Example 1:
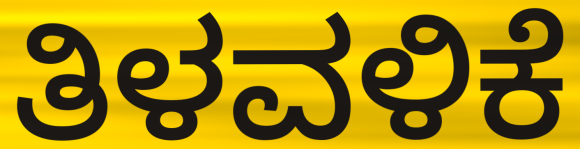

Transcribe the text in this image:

ತಿಳವಳಿಕೆ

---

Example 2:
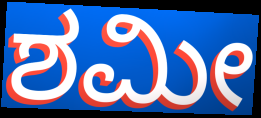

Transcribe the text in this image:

ಶಮೀ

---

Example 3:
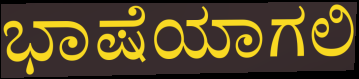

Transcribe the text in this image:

ಭಾಷೆಯಾಗಲಿ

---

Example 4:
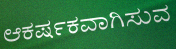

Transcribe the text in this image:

ಆಕರ್ಷಕವಾಗಿಸುವ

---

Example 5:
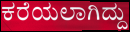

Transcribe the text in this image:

ಕರೆಯಲಾಗಿದ್ದು